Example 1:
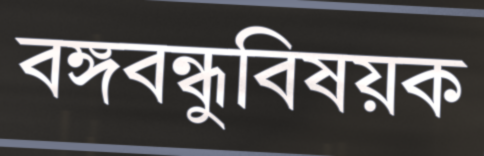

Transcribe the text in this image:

বঙ্গবন্ধুবিষয়ক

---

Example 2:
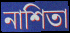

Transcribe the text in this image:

নাশিতা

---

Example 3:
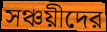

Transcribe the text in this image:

সঞ্চয়ীদের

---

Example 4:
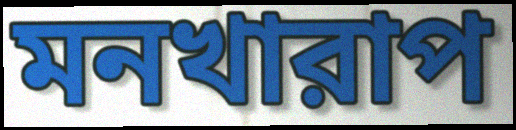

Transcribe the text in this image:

মনখারাপ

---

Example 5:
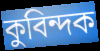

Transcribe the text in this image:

কুবিন্দক